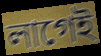
লাগেই